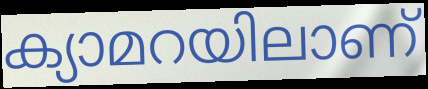
ക്യാമറയിലാണ്